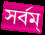
সর্বম্